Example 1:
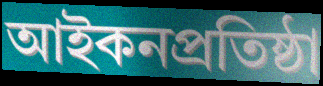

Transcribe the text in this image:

আইকনপ্রতিষ্ঠা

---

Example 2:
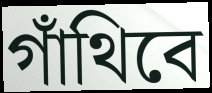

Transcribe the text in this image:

গাঁথিবে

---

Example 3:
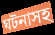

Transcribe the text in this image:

ঘটনাসহ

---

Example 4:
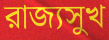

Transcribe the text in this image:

রাজ্যসুখ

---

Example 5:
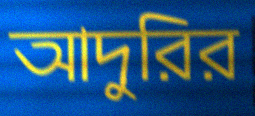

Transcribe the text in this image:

আদুরির